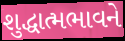
શુદ્ધાત્મભાવને